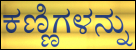
ಕಣ್ಣಿಗಳನ್ನು